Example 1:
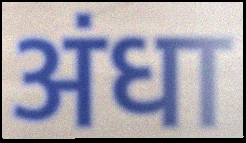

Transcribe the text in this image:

अंधा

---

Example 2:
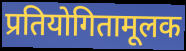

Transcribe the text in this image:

प्रतियोगितामूलक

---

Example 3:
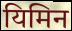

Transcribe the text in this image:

यिमिन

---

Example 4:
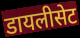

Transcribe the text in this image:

डायलीसेट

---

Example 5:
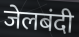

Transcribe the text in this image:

जेलबंदी